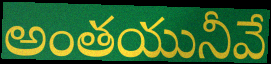
అంతయునీవే